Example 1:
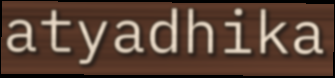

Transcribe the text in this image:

atyadhika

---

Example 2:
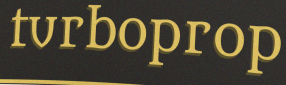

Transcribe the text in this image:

turboprop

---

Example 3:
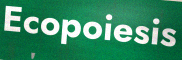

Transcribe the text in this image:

Ecopoiesis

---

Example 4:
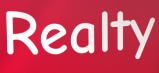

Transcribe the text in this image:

Realty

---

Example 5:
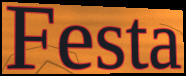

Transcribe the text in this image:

Festa